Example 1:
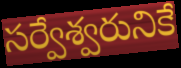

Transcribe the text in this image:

సర్వేశ్వరునికే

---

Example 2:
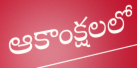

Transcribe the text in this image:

ఆకాంక్షలలో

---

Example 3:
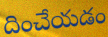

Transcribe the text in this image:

దించేయడం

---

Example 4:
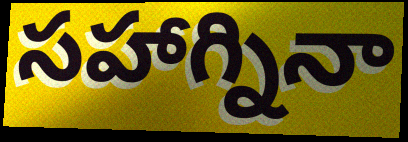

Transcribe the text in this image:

సహాగ్నినా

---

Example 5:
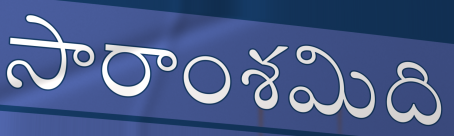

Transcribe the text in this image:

సారాంశమిది